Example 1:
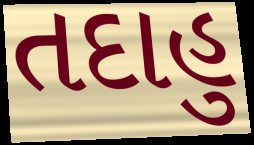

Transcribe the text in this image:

તદાહુ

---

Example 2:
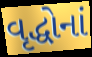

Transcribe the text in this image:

વૃદ્ધોનાં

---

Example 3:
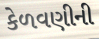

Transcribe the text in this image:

કેળવણીની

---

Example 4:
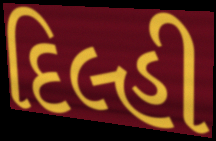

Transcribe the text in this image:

દિલ્હી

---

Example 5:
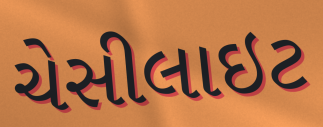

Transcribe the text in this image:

ચેસીલાઇટ